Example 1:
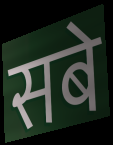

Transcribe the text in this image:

सबे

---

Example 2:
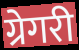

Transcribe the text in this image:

ग्रेगरी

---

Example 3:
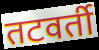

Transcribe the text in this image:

तटवर्ती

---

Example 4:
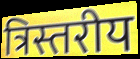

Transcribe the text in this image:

त्रिस्तरीय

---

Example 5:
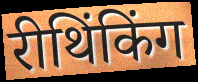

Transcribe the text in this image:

रीथिंकिंग